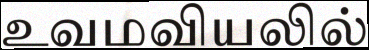
உவமவியலில்